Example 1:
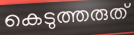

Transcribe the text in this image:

കെടുത്തരുത്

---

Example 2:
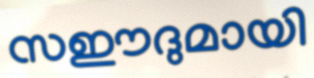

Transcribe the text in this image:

സഈദുമായി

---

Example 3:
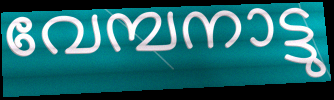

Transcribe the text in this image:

വേമ്പനാട്ടു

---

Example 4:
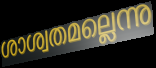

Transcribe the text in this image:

ശാശ്വതമല്ലെന്നു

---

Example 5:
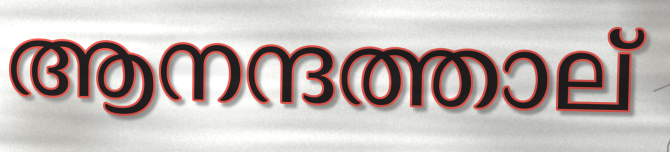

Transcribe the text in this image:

ആനന്ദത്താല്